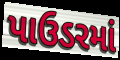
પાઉડરમાં